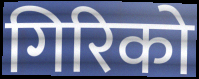
गिरिको